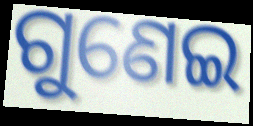
ଗୁଣେଇ